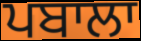
ਪਬਾਲਾ